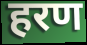
हरण